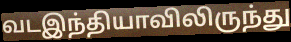
வடஇந்தியாவிலிருந்து